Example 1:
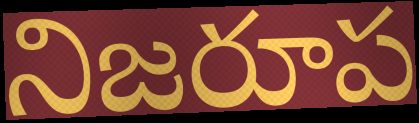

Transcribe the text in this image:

నిజరూప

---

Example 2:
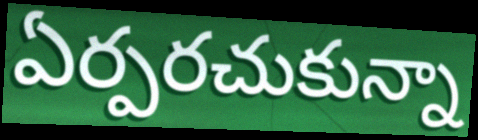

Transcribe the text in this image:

ఏర్పరచుకున్నా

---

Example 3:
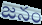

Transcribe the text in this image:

జనం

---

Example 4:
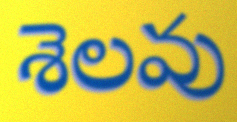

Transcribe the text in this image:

శెలవు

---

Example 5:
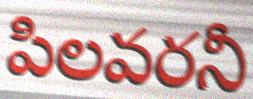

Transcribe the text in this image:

పిలవరనీ